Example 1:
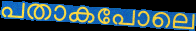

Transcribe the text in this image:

പതാകപോലെ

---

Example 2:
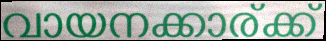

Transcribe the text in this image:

വായനക്കാര്ക്ക്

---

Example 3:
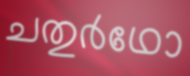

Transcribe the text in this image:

ചതുർഥോ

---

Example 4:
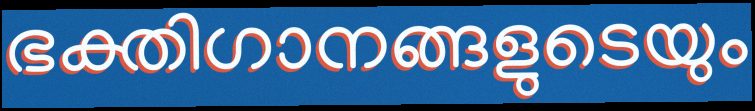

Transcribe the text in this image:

ഭക്തിഗാനങ്ങളുടെയും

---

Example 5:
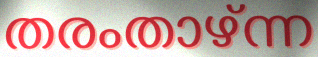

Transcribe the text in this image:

തരംതാഴ്ന്ന